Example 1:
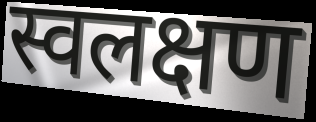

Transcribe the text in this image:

स्वलक्षण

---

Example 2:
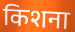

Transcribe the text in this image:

किशना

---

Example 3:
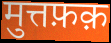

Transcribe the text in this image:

मुत्तफ़क़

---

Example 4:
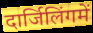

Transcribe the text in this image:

दार्जिलिंगमें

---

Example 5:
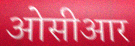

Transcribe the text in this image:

ओसीआर